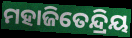
ମହାଜିତେନ୍ଦ୍ରିୟ